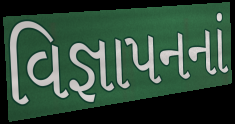
વિજ્ઞાપનનાં